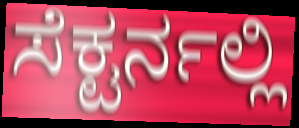
ಸೆಕ್ಟರ್ನಲ್ಲಿ